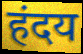
हंदय